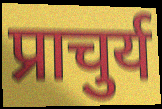
प्राचुर्य